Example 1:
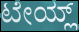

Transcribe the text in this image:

ಟೇಯ್ಲ್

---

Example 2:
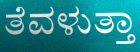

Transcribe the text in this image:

ತೆವಳುತ್ತಾ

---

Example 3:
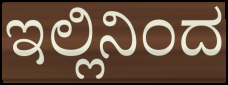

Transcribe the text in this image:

ಇಲ್ಲಿನಿಂದ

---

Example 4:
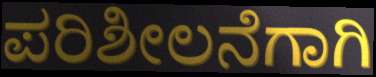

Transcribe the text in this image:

ಪರಿಶೀಲನೆಗಾಗಿ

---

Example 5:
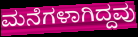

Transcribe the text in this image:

ಮನೆಗಳಾಗಿದ್ದವು